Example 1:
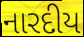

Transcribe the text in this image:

નારદીય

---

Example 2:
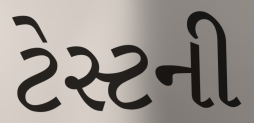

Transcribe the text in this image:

ટેસ્ટની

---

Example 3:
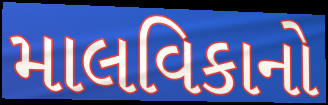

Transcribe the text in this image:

માલવિકાનો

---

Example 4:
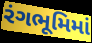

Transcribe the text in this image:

રંગભૂમિમાં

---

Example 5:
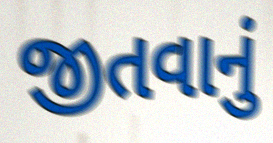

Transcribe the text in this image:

જીતવાનું